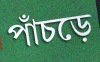
পাঁচড়ে